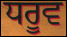
ਧਰੂਵ